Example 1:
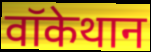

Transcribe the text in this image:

वॉकेथान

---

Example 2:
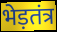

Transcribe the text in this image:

भेड़तंत्र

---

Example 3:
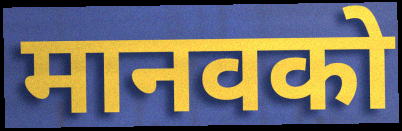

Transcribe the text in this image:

मानवको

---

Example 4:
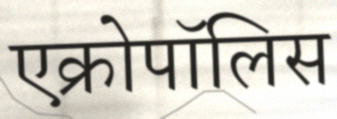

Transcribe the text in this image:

एक्रोपॉलिस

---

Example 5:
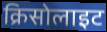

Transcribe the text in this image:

क्रिसोलाइट